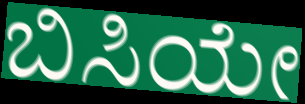
ಬಿಸಿಯೇ